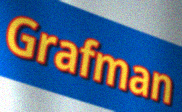
Grafman